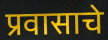
प्रवासाचे